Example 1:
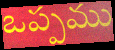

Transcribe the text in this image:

ఒప్పము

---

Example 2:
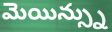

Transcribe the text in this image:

మెయిన్స్ను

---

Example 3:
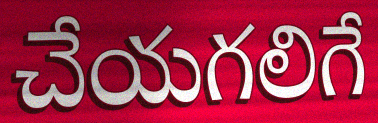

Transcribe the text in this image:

చేయగలిగే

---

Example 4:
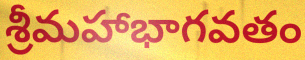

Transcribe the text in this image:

శ్రీమహాభాగవతం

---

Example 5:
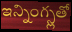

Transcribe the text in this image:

ఇన్నింగ్స్లతో